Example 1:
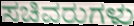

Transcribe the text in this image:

ಸಚಿವರುಗಳು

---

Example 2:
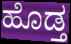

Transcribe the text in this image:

ಹೊಡ್ತ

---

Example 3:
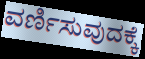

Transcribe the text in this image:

ವರ್ಣಿಸುವುದಕ್ಕೆ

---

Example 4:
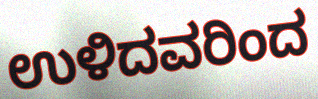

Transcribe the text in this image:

ಉಳಿದವರಿಂದ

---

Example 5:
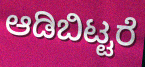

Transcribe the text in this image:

ಆಡಿಬಿಟ್ಟರೆ